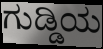
ಗುಡ್ಡಿಯ